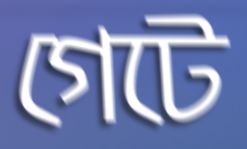
গেটে